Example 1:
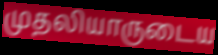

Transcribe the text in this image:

முதலியாருடைய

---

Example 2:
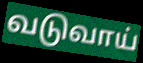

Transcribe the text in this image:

வடுவாய்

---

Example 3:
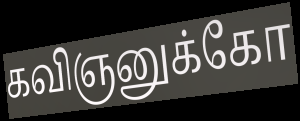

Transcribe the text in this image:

கவிஞனுக்கோ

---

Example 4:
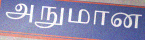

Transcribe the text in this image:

அநுமான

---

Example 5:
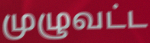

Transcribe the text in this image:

முழுவட்ட